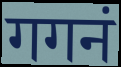
गगनं